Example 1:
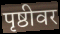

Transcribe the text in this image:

पृष्ठीवर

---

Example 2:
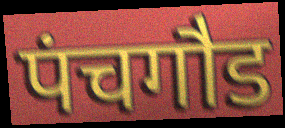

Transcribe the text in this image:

पंचगौड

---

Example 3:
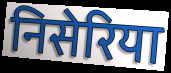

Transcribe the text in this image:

निसेरिया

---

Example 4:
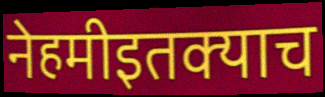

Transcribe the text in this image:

नेहमीइतक्याच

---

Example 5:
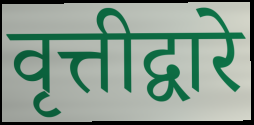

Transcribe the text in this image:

वृत्तीद्वारे